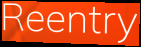
Reentry